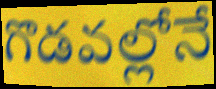
గొడవల్లోనే